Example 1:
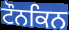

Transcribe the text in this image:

ਟੌਨਕਿਨ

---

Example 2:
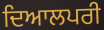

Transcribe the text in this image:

ਦਿਆਲਪਰੀ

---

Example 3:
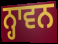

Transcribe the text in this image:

ਨ੍ਹਾਵਨ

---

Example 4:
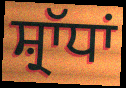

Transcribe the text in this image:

ਸ਼੍ਰਾੱਧਾਂ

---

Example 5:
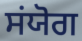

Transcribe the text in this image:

ਸਂਯੋਗ